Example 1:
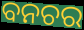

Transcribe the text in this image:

ବନଚର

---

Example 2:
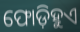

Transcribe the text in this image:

ଫୋଡ଼ିହୁଏ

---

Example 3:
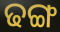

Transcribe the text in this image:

ଢଙ୍ଗ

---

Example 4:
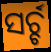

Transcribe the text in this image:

ସର୍ଚ୍ଚ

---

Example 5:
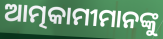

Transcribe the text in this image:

ଆତ୍ମକାମୀମାନଙ୍କୁ